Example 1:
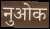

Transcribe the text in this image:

नुओक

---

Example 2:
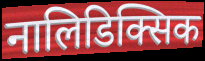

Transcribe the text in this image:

नालिडिक्सिक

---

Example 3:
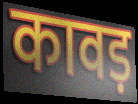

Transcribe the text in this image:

कावड़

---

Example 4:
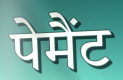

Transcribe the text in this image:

पेमैंट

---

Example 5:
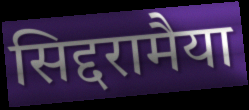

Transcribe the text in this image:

सिद्दरामैया